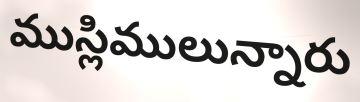
ముస్లిములున్నారు